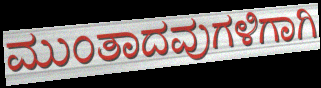
ಮುಂತಾದವುಗಳಿಗಾಗಿ